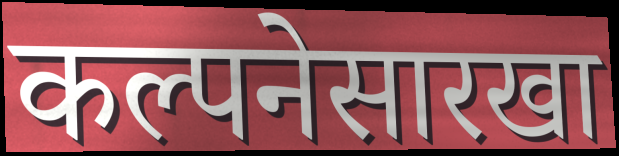
कल्पनेसारखा